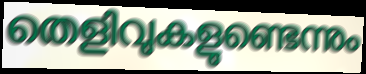
തെളിവുകളുണ്ടെന്നും